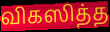
விகஸித்த